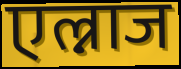
एल्नाज